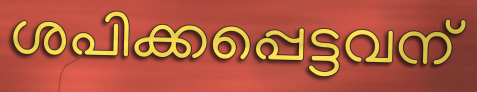
ശപിക്കപ്പെട്ടവന്